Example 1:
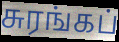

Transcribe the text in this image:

சுரங்கப்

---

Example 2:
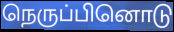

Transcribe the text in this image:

நெருப்பினொடு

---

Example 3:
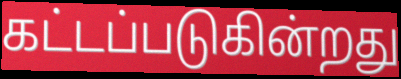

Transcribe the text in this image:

கட்டப்படுகின்றது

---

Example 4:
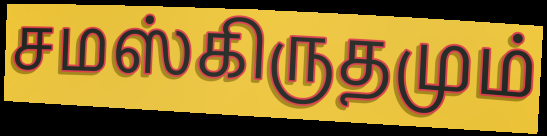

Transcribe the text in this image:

சமஸ்கிருதமும்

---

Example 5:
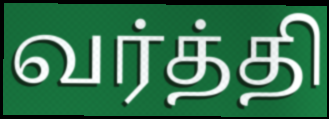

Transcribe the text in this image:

வர்த்தி